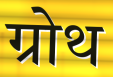
ग्रोथ